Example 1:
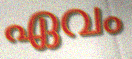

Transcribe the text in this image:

ഏവം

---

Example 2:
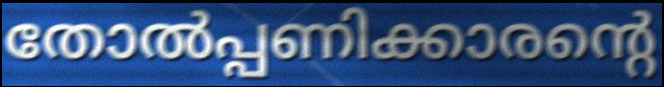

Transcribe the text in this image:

തോൽപ്പണിക്കാരന്റെ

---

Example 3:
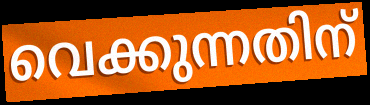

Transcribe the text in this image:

വെക്കുന്നതിന്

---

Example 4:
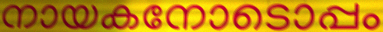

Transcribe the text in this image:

നായകനോടൊപ്പം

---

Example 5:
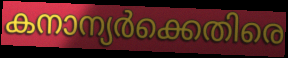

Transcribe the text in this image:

കനാന്യർക്കെതിരെ